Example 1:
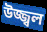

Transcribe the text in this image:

উজ্জ্বল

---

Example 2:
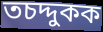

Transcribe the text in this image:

তচদ্দুকক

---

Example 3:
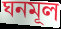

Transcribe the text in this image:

ঘনমূল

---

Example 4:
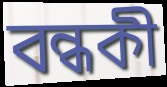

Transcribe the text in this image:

বন্ধকী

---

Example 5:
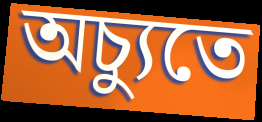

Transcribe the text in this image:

অচ্যুতে